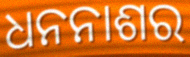
ଧନନାଶର